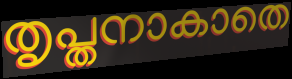
തൃപ്തനാകാതെ